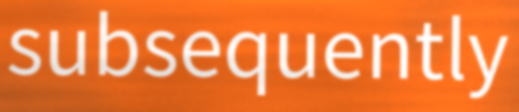
subsequently